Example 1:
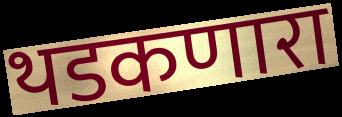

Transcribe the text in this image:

थडकणारा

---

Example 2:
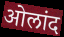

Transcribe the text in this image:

ओलांद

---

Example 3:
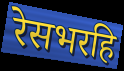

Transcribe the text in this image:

रेसभरहि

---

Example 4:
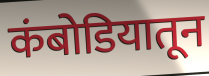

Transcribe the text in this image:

कंबोडियातून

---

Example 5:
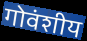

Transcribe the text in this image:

गोवंशीय